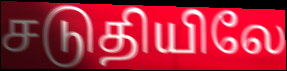
சடுதியிலே